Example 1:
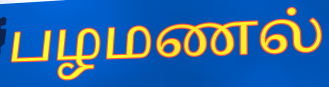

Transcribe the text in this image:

பழமணல்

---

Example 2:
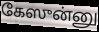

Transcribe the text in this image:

கேஸுன்னு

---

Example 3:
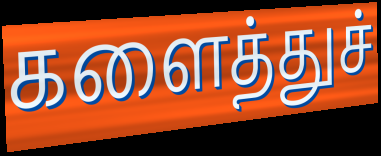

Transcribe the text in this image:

களைத்துச்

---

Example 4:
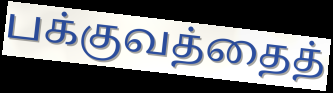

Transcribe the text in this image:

பக்குவத்தைத்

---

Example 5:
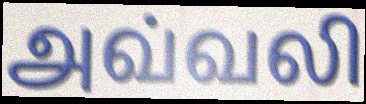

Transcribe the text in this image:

அவ்வலி